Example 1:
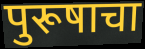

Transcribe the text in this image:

पुरूषाचा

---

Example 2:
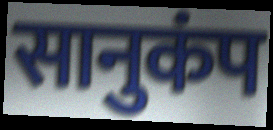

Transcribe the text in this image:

सानुकंप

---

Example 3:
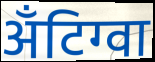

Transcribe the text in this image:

अँटिग्वा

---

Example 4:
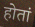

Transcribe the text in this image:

होतां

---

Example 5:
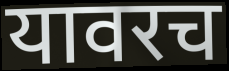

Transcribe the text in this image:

यावरच